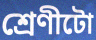
শ্ৰেণীটো